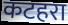
कटहरा